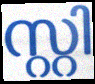
സ്റ്റി